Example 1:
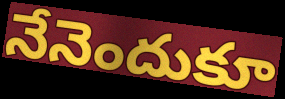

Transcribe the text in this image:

నేనెందుకూ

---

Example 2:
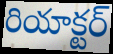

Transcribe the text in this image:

రియాక్టర్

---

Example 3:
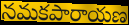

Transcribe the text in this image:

నమకపారాయణ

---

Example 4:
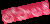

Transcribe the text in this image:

లోపాలకి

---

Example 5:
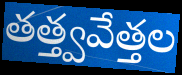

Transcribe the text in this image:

తత్త్వవేత్తల